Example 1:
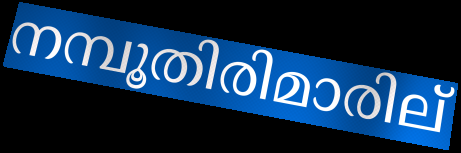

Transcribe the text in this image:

നമ്പൂതിരിമാരില്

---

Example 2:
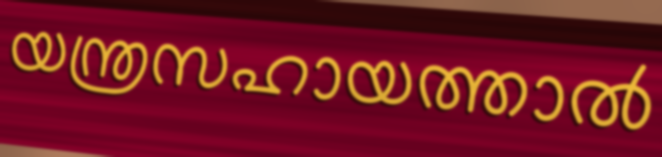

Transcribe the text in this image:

യന്ത്രസഹായത്താൽ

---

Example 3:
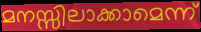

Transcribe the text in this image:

മനസ്സിലാക്കാമെന്ന്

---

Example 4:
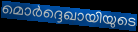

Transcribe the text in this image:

മൊർദ്ദെഖായിയുടെ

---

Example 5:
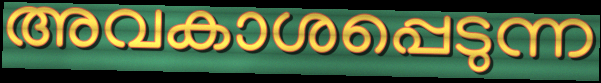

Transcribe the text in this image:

അവകാശപ്പെടുന്ന